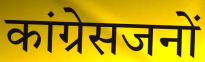
कांग्रेसजनों